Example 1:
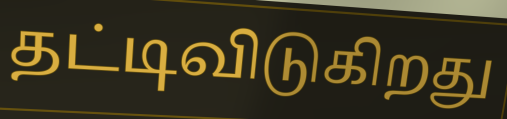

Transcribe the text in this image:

தட்டிவிடுகிறது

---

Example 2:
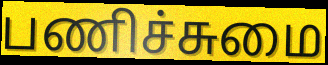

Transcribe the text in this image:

பணிச்சுமை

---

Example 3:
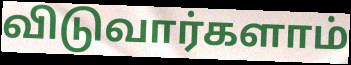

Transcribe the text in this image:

விடுவார்களாம்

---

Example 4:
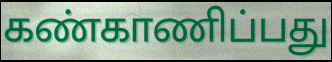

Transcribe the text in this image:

கண்காணிப்பது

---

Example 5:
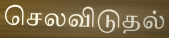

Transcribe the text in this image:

செலவிடுதல்